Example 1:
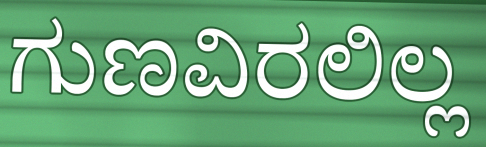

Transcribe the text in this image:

ಗುಣವಿರಲಿಲ್ಲ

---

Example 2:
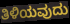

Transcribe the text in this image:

ತಿಳಿಯವುದು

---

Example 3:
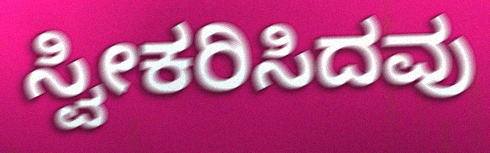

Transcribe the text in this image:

ಸ್ವೀಕರಿಸಿದವು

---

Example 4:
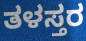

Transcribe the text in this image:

ತಳಸ್ತರ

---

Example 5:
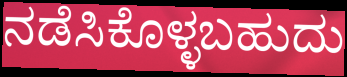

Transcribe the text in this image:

ನಡೆಸಿಕೊಳ್ಳಬಹುದು